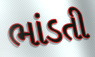
ભાંડતી